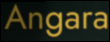
Angara